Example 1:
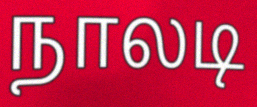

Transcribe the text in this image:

நாலடி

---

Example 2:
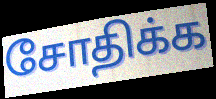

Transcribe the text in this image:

சோதிக்க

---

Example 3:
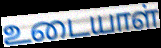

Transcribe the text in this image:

உடையாள்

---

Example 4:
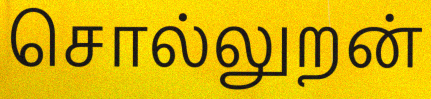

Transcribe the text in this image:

சொல்லுறன்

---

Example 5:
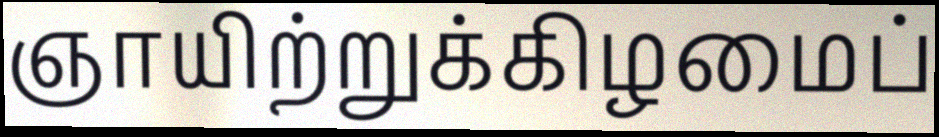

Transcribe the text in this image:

ஞாயிற்றுக்கிழமைப்